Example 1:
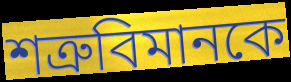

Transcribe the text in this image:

শত্রুবিমানকে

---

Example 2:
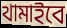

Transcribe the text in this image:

থামাইবে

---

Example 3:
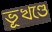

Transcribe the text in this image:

ভূখণ্ডে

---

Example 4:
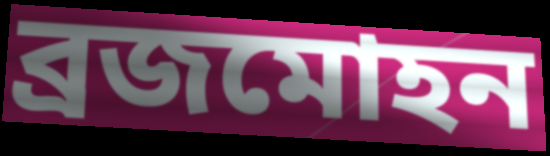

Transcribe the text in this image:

ব্রজমোহন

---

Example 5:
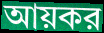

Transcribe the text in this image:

আয়কর